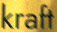
kraft